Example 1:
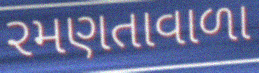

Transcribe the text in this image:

રમણતાવાળા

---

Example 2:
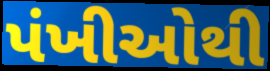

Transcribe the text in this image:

પંખીઓથી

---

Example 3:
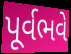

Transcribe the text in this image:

પૂર્વભવે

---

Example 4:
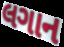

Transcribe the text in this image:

લગાન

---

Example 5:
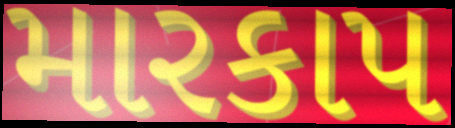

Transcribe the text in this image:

મારકાપ